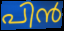
പിൻ